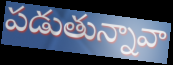
పడుతున్నావా